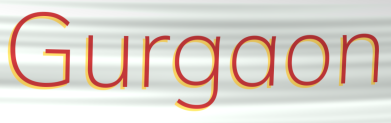
Gurgaon